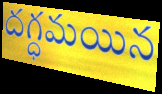
దగ్ధమయిన